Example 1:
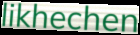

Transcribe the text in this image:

likhechen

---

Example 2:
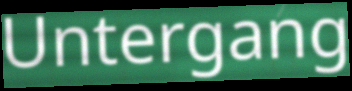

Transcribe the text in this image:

Untergang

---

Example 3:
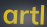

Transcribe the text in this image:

artl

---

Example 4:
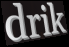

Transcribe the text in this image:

drik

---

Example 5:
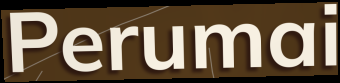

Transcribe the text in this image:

Perumai